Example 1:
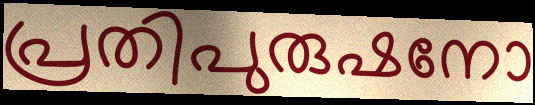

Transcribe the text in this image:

പ്രതിപുരുഷനോ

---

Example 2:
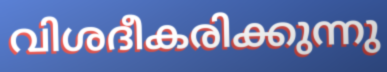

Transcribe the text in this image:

വിശദീകരിക്കുന്നു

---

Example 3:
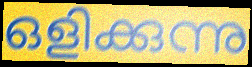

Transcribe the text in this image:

ഒളിക്കുന്നു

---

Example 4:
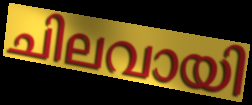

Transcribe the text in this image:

ചിലവായി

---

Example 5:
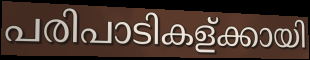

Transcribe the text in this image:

പരിപാടികള്ക്കായി